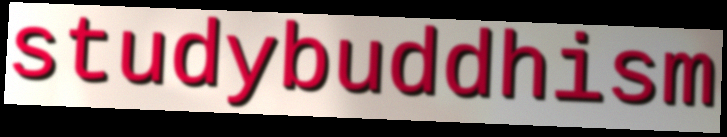
studybuddhism